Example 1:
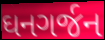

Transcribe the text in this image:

ઘનગર્જન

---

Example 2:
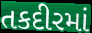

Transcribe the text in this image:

તકદીરમાં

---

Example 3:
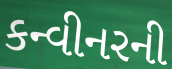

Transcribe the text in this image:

કન્વીનરની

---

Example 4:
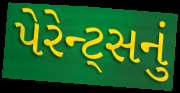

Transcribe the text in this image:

પેરેન્ટ્સનું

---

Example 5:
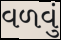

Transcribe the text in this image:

વળવું